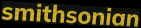
smithsonian